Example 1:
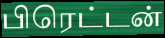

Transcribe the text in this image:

பிரெட்டன்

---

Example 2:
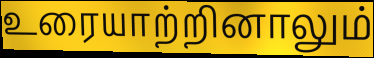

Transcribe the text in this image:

உரையாற்றினாலும்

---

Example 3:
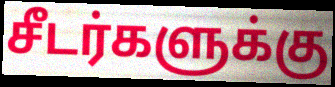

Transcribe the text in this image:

சீடர்களுக்கு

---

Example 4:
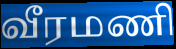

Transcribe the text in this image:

வீரமணி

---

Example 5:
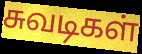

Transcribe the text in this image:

சுவடிகள்